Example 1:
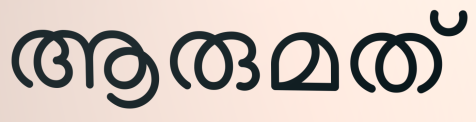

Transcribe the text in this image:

ആരുമത്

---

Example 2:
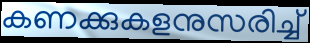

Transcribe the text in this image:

കണക്കുകളനുസരിച്ച്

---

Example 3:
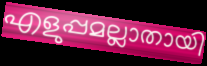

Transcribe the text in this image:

എളുപ്പമല്ലാതായി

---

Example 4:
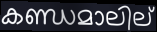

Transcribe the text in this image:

കണ്ഡമാലില്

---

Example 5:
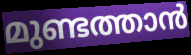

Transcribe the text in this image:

മുണ്ടത്താൻ